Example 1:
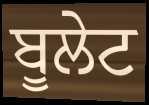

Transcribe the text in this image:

ਬੂਲੇਟ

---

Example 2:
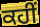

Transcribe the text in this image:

ਕਹੀਂ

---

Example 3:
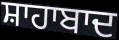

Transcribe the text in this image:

ਸ਼ਾਹਾਬਾਦ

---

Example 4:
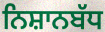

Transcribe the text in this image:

ਨਿਸ਼ਾਨਬੱਧ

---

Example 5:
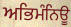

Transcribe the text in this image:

ਅਭਿਮੰਨਿਊ